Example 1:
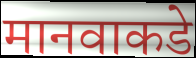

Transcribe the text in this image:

मानवाकडे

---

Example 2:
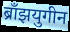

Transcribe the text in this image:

ब्राँझयुगीन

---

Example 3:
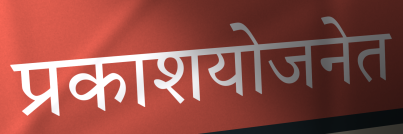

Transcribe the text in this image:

प्रकाशयोजनेत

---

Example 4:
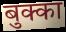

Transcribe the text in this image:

बुक्का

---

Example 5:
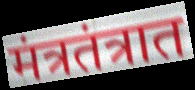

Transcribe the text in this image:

मंत्रतंत्रात